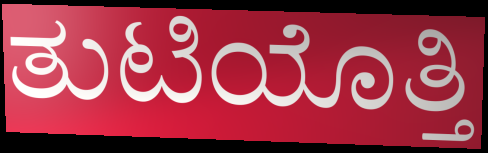
ತುಟಿಯೊತ್ತಿ